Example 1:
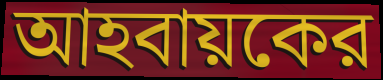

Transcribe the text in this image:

আহবায়কের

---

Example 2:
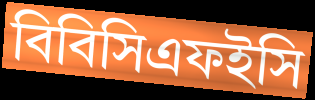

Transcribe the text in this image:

বিবিসিএফইসি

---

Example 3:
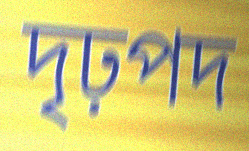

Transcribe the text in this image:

দৃঢ়পদ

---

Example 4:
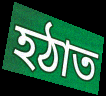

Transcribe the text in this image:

হঠাত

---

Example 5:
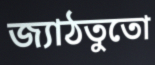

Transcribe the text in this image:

জ্যাঠতুতো